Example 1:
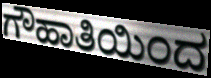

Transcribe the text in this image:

ಗೌಹಾತಿಯಿಂದ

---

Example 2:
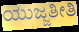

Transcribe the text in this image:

ಯುಜ್ಜತೀತಿ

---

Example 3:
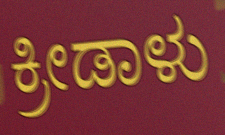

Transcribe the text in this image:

ಕ್ರೀಡಾಳು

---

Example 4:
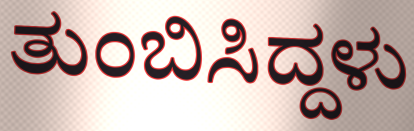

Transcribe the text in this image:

ತುಂಬಿಸಿದ್ದಳು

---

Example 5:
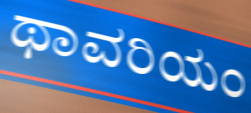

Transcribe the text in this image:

ಥಾವರಿಯಂ